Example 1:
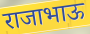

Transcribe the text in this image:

राजाभाऊ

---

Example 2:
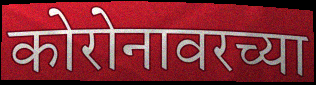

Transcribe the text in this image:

कोरोनावरच्या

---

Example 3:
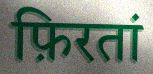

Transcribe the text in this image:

फ़िरतां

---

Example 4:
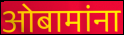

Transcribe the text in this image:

ओबामांना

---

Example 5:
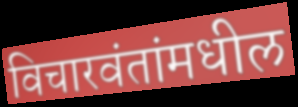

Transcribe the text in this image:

विचारवंतांमधील